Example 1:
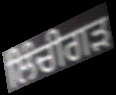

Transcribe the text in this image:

ਲਿੰਚੀਗੜ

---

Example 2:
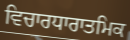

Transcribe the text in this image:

ਵਿਚਾਰਧਾਰਾਤਮਿਕ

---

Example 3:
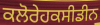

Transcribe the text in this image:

ਕਲੋਰੇਹਕਸੀਡੀਨ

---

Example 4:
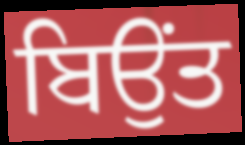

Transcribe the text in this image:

ਬਿਉਂਤ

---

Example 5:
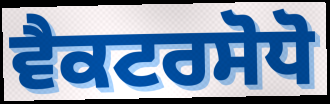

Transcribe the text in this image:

ਵੈਕਟਰਸੋਧੋ